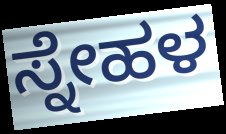
ಸ್ನೇಹಳ